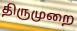
திருமுறை